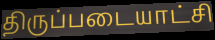
திருப்படையாட்சி